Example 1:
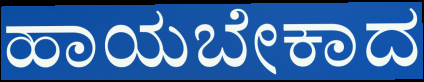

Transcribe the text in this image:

ಹಾಯಬೇಕಾದ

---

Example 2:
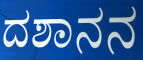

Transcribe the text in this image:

ದಶಾನನ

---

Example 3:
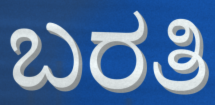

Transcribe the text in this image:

ಬರತಿ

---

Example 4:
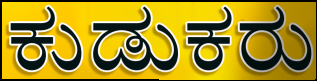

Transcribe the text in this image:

ಕುಡುಕರು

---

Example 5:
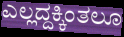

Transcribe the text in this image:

ಎಲ್ಲದ್ದಕ್ಕಿಂತಲೂ